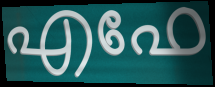
എഫേ